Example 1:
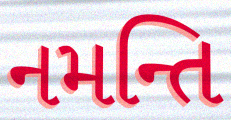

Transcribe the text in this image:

નમન્તિ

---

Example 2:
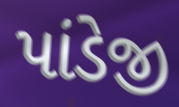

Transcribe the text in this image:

પાંડેજી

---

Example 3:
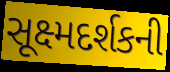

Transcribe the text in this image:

સૂક્ષ્મદર્શકની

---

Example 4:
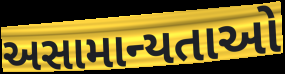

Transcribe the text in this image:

અસામાન્યતાઓ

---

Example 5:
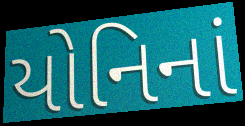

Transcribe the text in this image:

યોનિનાં